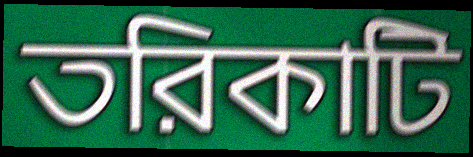
তরিকাটি